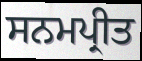
ਸਨਮਪ੍ਰੀਤ